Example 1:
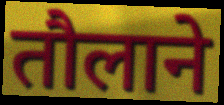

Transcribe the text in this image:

तौलाने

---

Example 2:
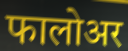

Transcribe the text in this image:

फालोअर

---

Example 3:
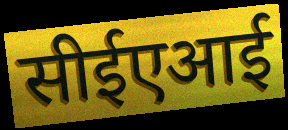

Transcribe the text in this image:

सीईएआई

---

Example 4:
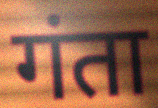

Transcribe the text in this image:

गंता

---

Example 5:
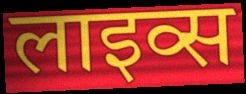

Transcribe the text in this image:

लाइव्स